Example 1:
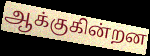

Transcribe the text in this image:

ஆக்குகின்றன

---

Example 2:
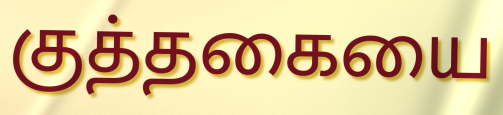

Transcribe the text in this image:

குத்தகையை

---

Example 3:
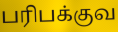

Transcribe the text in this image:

பரிபக்குவ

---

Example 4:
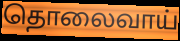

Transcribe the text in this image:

தொலைவாய்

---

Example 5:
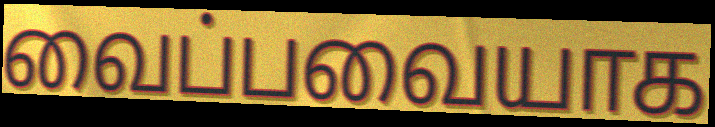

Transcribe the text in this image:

வைப்பவையாக